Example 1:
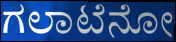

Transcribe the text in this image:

ಗಲಾಟೆನೋ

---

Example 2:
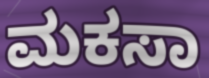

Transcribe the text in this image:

ಮಕಸಾ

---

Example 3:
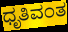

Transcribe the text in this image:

ಧೃತಿವಂತ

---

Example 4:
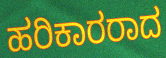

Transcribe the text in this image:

ಹರಿಕಾರರಾದ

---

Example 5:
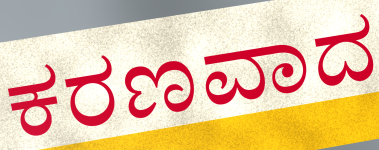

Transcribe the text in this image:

ಕರಣವಾದ